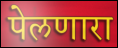
पेलणारा